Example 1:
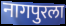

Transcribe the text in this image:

नागपुरला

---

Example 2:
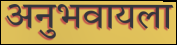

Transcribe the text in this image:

अनुभवायला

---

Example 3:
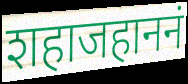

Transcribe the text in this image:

शहाजहाननं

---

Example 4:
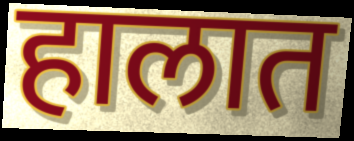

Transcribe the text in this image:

हालात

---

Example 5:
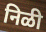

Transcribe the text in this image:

निळी